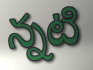
న్నటి